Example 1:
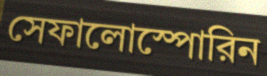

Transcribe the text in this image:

সেফালোস্পোরিন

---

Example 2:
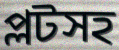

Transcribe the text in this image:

প্লটসহ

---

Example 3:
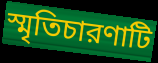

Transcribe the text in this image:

স্মৃতিচারণাটি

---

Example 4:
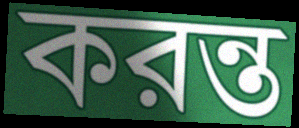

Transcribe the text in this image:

করন্ত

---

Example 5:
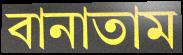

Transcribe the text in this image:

বানাতাম